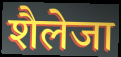
शैलेजा